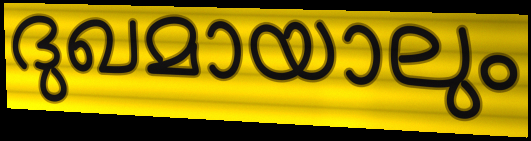
ദുഖമായാലും